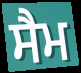
ਸੈਮ